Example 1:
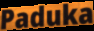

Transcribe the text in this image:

Paduka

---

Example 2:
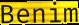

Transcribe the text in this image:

Benim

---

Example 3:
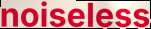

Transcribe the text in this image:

noiseless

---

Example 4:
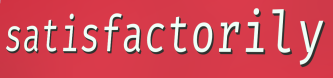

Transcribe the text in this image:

satisfactorily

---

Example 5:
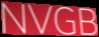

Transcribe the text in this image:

NVGB